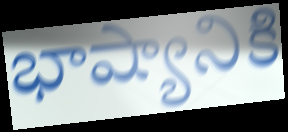
భాష్యానికి